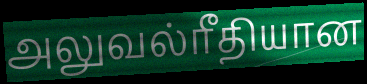
அலுவல்ரீதியான